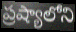
ప్రష్యాలోని